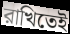
রাখিতেই